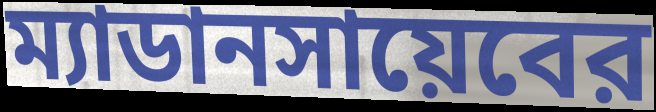
ম্যাডানসায়েবের